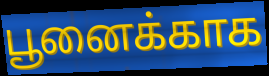
பூனைக்காக